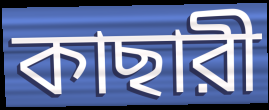
কাছারী